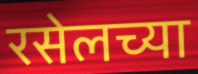
रसेलच्या